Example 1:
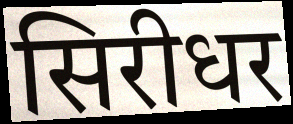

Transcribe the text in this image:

सिरीधर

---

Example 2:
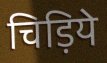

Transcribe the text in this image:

चिड़िये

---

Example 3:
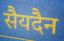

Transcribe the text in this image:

सैयदैन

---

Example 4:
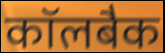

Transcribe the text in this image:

कॉलबैक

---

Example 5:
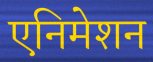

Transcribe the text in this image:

एनिमेशन